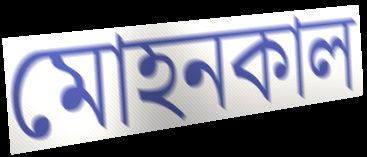
মোহনকাল